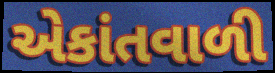
એકાંતવાળી